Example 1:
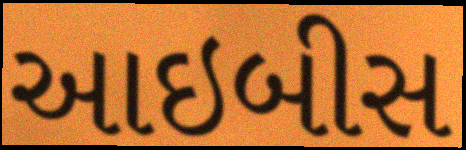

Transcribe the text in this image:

આઇબીસ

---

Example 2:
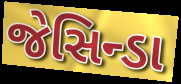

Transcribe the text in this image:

જેસિન્ડા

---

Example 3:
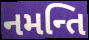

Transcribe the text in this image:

નમન્તિ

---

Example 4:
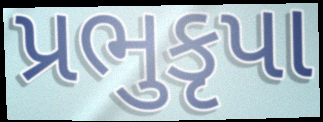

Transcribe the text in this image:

પ્રભુકૃપા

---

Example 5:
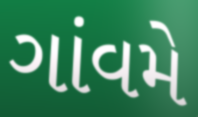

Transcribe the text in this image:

ગાંવમે